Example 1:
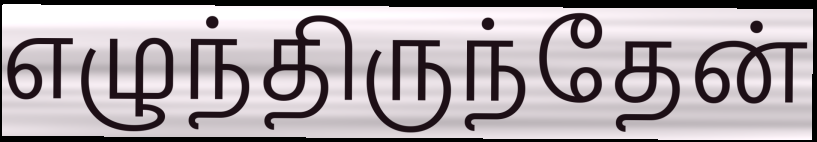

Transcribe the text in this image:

எழுந்திருந்தேன்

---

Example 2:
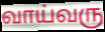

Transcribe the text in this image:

வாய்வரு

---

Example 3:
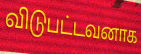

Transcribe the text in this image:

விடுபட்டவனாக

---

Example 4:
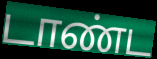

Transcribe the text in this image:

டாண்ட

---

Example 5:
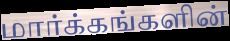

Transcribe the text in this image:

மார்க்கங்களின்